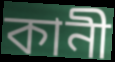
কানী